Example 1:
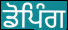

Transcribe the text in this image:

ਡੋਪਿੰਗ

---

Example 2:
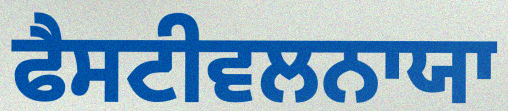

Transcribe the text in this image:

ਫੈਸਟੀਵਲਨਾਯਾ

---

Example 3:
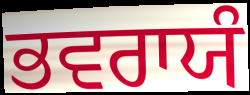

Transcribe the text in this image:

ਭਵਰਾਯੰ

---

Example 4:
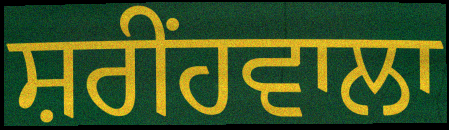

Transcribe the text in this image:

ਸ਼ਰੀਂਹਵਾਲਾ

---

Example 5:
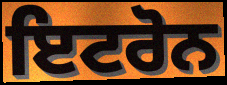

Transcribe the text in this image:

ਇਟਰੋਨ